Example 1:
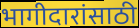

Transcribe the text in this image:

भागीदारांसाठी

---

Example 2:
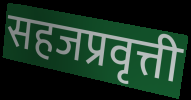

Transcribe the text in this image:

सहजप्रवृत्ती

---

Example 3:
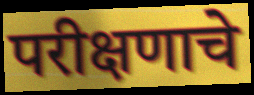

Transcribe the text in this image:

परीक्षणाचे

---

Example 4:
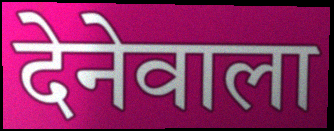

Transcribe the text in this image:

देनेवाला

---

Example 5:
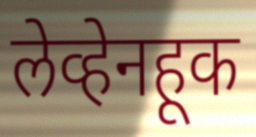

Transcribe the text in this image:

लेव्हेनहूक